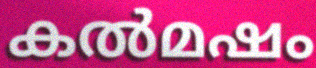
കൽമഷം